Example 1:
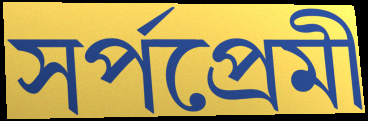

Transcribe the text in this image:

সর্পপ্রেমী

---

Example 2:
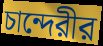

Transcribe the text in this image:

চান্দেরীর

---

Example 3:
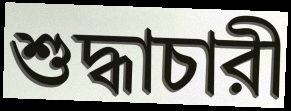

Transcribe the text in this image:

শুদ্ধাচারী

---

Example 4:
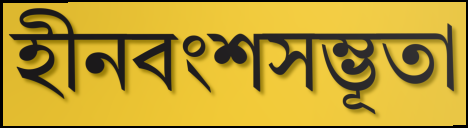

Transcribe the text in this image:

হীনবংশসম্ভূতা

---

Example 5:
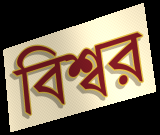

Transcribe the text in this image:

বিশ্বর